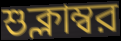
শুক্লাম্বর